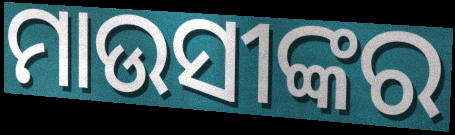
ମାଉସୀଙ୍କର